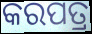
କରପତ୍ର